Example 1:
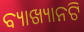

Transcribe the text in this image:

ବ୍ୟାଖ୍ୟାନଟି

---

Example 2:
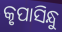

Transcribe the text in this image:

କୃପାସିନ୍ଧୁ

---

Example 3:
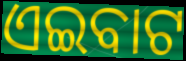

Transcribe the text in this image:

ଏଇବାଟ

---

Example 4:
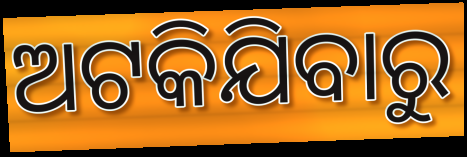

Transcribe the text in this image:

ଅଟକିଯିବାରୁ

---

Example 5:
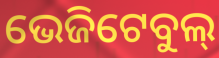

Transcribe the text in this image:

ଭେଜିଟେବୁଲ୍